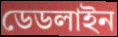
ডেডলাইন